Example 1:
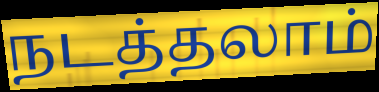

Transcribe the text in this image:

நடத்தலாம்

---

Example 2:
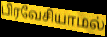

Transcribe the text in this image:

பிரவேசியாமல்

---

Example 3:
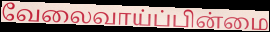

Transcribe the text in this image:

வேலைவாய்ப்பின்மை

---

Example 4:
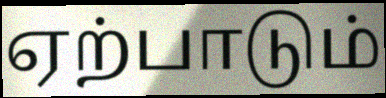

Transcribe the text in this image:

ஏற்பாடும்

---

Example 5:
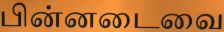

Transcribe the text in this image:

பின்னடைவை